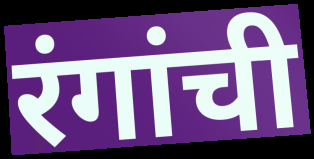
रंगांची